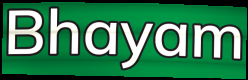
Bhayam